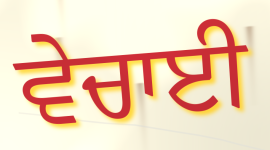
ਵੇਚਾਈ